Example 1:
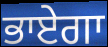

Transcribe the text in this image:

ਭਾਏਗਾ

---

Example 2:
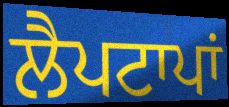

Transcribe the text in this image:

ਲੈਪਟਾਪਾਂ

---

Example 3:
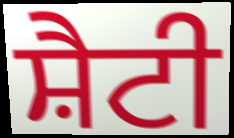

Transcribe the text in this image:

ਸ਼ੈਟੀ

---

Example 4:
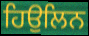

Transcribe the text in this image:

ਹਿਉਲਿਨ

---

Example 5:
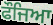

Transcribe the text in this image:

ਫੌਜਿਆ